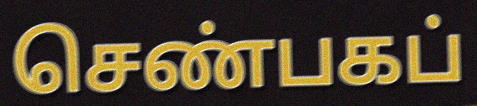
செண்பகப்